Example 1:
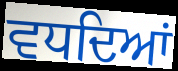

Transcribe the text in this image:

ਵਧਦਿਆਂ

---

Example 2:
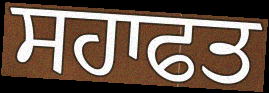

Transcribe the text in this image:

ਸਹਾਫਤ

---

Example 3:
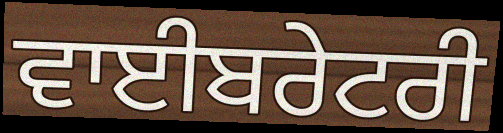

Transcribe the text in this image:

ਵਾਈਬਰੇਟਰੀ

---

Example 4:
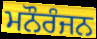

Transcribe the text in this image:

ਮਨੌਰੰਜਨ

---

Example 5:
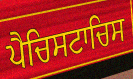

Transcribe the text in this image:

ਪੈਚਿਸਟਾਚਿਸ